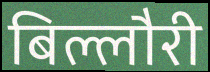
बिल्लौरी